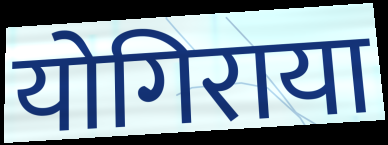
योगिराया